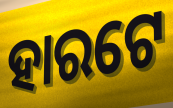
ହାରଟେ